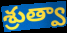
శ్రుత్వా